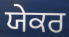
ਯੇਕਰ